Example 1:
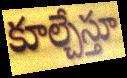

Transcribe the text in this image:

కూల్చేస్తూ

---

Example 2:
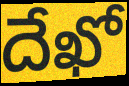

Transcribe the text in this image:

దేఖో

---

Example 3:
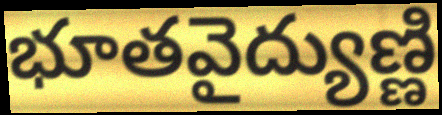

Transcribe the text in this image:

భూతవైద్యుణ్ణి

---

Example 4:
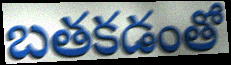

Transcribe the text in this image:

బతకడంతో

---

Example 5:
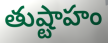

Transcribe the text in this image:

తుష్టాహం